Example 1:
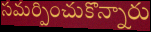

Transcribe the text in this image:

సమర్పించుకొన్నారు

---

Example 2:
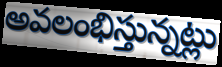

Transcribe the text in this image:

అవలంభిస్తున్నట్లు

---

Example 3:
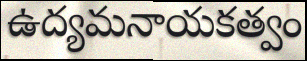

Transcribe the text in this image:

ఉద్యమనాయకత్వం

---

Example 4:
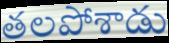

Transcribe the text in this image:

తలపోశాడు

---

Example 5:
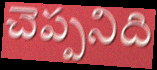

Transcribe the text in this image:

చెప్పనిది